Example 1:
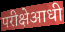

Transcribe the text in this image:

परीक्षेआधी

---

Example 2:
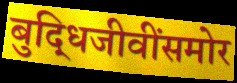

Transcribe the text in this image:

बुद्धिजीवींसमोर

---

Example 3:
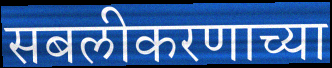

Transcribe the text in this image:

सबलीकरणाच्या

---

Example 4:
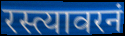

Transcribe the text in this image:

रस्त्यावरनं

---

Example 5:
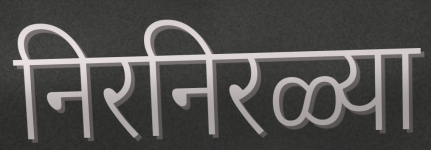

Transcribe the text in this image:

निरनिरळ्या